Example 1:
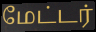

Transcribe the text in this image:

மேட்டர்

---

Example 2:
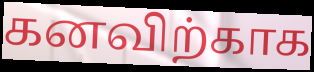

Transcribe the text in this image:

கனவிற்காக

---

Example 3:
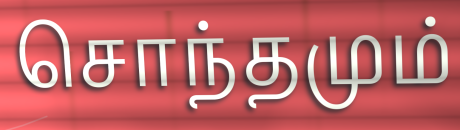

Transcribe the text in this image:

சொந்தமும்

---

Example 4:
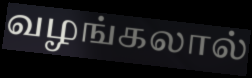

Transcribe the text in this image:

வழங்கலால்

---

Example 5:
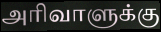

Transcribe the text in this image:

அரிவாளுக்கு